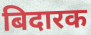
बिदारक